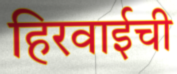
हिरवाईची